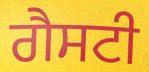
ਗੈਸਟੀ